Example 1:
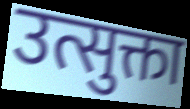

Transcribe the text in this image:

उत्सुक्ता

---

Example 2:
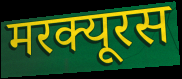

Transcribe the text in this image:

मरक्यूरस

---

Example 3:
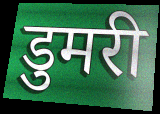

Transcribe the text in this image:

डुमरी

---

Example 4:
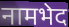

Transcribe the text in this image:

नामभेद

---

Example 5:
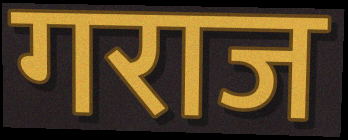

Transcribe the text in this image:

गराज